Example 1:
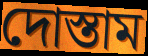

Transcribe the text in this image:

দোস্তাম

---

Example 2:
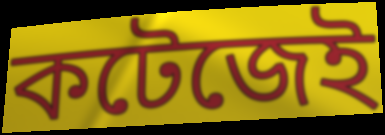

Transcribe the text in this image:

কটেজেই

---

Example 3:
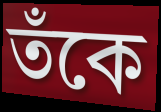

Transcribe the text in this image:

তঁকে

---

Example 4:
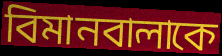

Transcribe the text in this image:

বিমানবালাকে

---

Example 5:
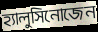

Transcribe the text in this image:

হ্যালুসিনোজেন